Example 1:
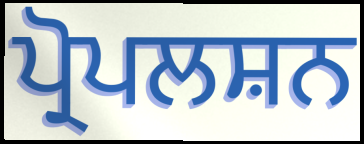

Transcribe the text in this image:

ਪ੍ਰੋਪਲਸ਼ਨ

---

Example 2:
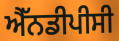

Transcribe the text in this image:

ਐੱਨਡੀਪੀਸੀ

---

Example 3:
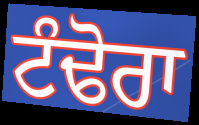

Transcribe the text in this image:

ਟੰਢੋਰਾ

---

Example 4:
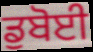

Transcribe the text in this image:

ਡੁਬੋਈ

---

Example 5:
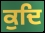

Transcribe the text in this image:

ਕੁਦਿ